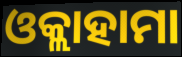
ଓକ୍ଲାହାମା